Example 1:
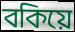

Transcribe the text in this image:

বকিয়ে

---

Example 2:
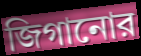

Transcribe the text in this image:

জিগানোর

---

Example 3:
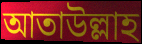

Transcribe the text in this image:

আতাউল্লাহ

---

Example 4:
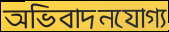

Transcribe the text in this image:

অভিবাদনযোগ্য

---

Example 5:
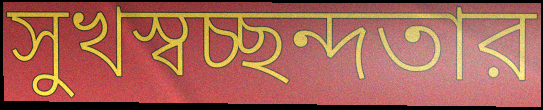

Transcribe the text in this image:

সুখস্বচ্ছন্দতার